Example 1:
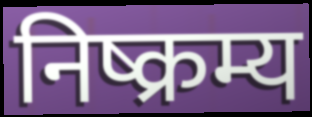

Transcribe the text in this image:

निष्क्रम्य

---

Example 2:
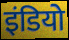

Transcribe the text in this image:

इंडियो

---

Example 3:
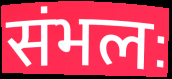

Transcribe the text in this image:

संभलः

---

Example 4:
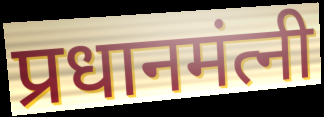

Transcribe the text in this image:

प्रधानमंत्नी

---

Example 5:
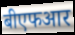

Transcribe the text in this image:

बीएफआर